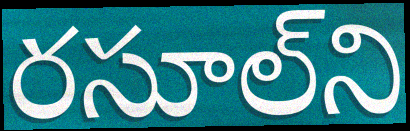
రసూల్‌ని